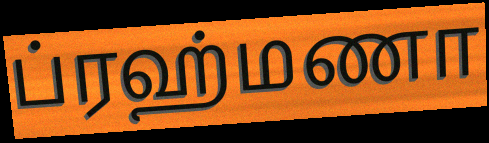
ப்ரஹ்மணா